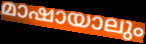
മാഷായാലും